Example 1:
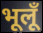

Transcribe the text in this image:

भूलूँ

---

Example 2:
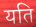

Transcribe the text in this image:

यति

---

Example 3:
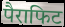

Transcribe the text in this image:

पैराफिट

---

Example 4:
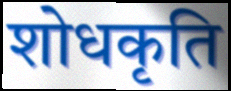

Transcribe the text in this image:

शोधकृति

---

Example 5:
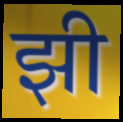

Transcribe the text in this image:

झी